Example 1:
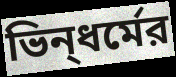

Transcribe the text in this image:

ভিন্‌ধর্মের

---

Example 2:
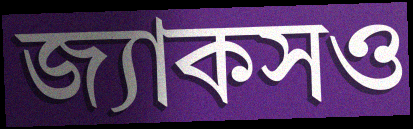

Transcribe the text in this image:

জ্যাকসও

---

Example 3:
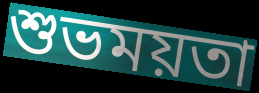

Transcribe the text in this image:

শুভময়তা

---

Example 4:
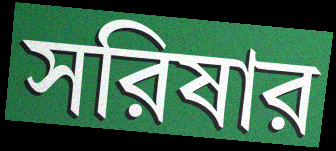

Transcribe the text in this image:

সরিষার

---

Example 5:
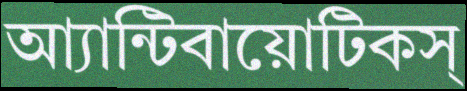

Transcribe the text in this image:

আ্যান্টিবায়োটিকস্